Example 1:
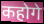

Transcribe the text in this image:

कहोगे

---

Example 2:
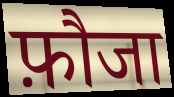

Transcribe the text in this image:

फ़ौजा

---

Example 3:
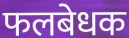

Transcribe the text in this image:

फलबेधक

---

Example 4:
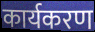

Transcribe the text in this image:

कार्यकरण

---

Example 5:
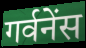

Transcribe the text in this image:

गर्वनेंस